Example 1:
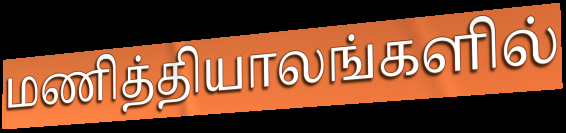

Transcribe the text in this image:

மணித்தியாலங்களில்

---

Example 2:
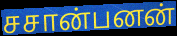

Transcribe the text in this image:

சசான்பனன்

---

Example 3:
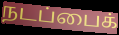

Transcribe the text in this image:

நடப்பைக்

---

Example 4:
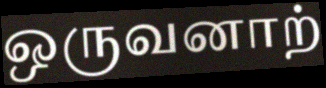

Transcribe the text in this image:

ஒருவனாற்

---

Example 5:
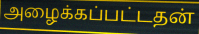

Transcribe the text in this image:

அழைக்கப்பட்டதன்